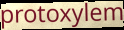
protoxylem